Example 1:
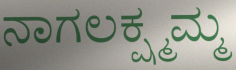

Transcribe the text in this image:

ನಾಗಲಕ್ಷ್ಮಮ್ಮ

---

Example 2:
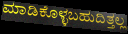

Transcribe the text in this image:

ಮಾಡಿಕೊಳ್ಳಬಹುದಿತ್ತಲ್ಲ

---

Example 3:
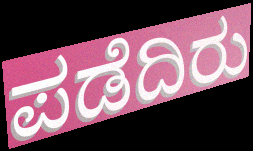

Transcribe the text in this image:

ಪಡೆದಿರು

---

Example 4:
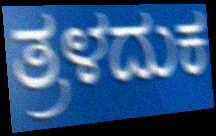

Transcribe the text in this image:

ತ್ರಳದುಕ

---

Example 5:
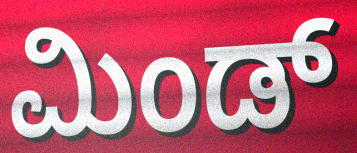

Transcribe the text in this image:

ಮಿಂಡ್